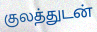
குலத்துடன்